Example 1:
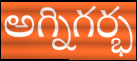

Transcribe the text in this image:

అగ్నిగర్భ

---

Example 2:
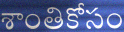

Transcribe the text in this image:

శాంతికోసం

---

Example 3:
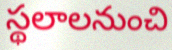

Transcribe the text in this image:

స్థలాలనుంచి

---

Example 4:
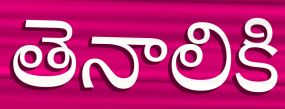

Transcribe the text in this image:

తెనాలికి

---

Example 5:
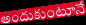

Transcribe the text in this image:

అందుకుంటూనే